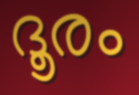
ദൂരം